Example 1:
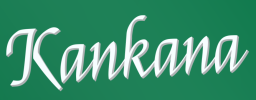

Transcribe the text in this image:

Kankana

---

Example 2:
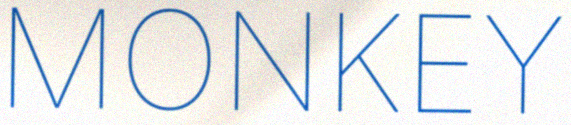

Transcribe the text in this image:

MONKEY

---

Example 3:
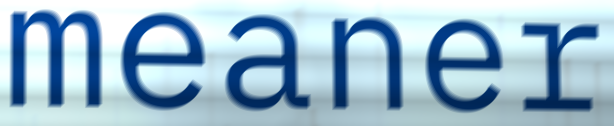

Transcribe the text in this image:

meaner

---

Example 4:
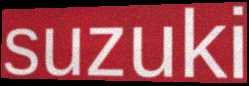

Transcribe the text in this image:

suzuki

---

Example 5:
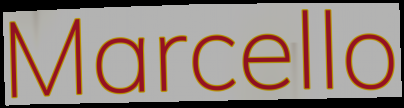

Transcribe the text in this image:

Marcello